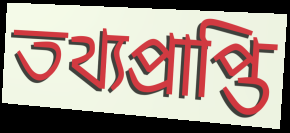
তথ্যপ্রাপ্তি